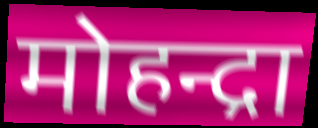
मोहन्द्रा